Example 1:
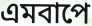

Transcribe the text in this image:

এমবাপে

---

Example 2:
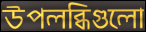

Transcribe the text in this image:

উপলব্ধিগুলো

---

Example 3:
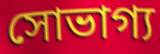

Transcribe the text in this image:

সোভাগ্য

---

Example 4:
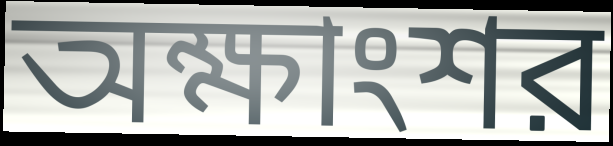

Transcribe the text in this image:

অক্ষাংশর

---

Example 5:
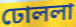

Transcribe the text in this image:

ঢোললা